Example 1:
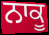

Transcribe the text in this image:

ਨਾਕੂ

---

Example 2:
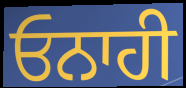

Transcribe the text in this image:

ਓਨਾਹੀ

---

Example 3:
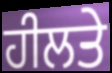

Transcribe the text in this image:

ਹੀਲਤੇ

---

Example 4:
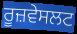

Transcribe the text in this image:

ਰੂਜ਼ਵੇਸਲਟ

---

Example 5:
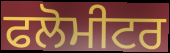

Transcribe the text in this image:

ਫਲੋਮੀਟਰ